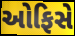
ઓફિસે